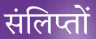
संलिप्तों